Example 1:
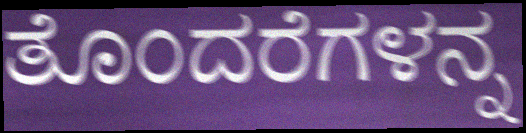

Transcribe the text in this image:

ತೊಂದರೆಗಳನ್ನ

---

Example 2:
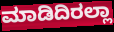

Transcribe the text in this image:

ಮಾಡಿದಿರಲ್ಲಾ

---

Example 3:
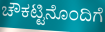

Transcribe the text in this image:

ಚೌಕಟ್ಟಿನೊಂದಿಗೆ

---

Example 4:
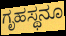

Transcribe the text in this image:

ಗೃಹಸ್ಥನೂ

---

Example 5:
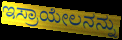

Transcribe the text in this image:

ಇಸ್ರಾಯೇಲನನ್ನು